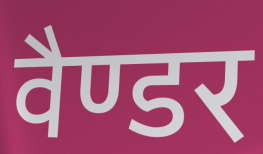
वैण्डर